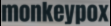
monkeypox